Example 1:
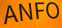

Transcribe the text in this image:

ANFO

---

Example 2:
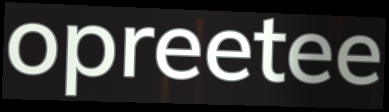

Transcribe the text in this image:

opreetee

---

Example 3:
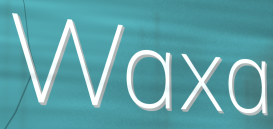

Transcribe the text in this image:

Waxa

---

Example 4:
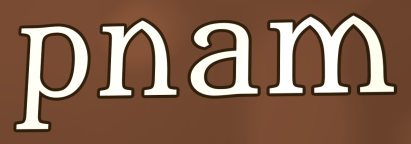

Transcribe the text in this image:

pnam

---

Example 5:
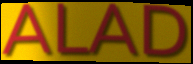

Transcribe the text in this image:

ALAD